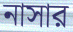
নাসার